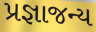
પ્રજ્ઞાજન્ય